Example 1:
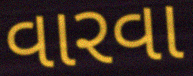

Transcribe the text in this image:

વારવા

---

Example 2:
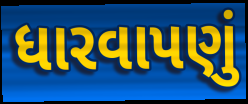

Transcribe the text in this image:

ધારવાપણું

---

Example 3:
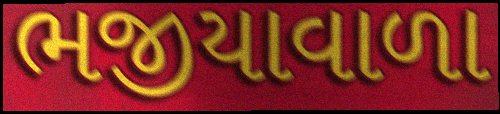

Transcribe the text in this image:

ભજીયાવાળા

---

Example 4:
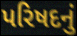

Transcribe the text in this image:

પરિષદનું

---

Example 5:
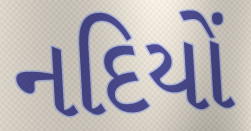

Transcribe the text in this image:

નદિયોં